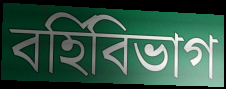
বর্হিবিভাগ